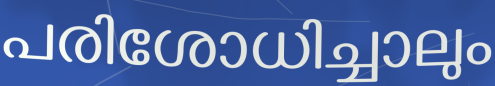
പരിശോധിച്ചാലും